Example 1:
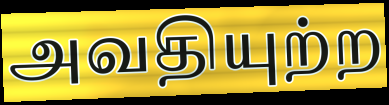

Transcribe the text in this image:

அவதியுற்ற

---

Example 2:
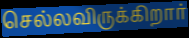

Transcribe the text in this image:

செல்லவிருக்கிறார்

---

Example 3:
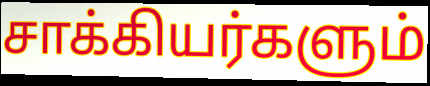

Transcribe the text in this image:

சாக்கியர்களும்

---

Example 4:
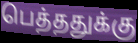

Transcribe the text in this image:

பெத்ததுக்கு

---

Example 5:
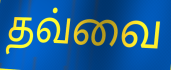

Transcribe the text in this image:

தவ்வை